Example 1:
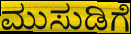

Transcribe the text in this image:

ಮುಸುಡಿಗೆ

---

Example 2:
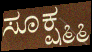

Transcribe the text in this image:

ಸೂಕ್ಷ್ಮ್ಮ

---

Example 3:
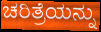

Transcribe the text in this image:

ಚರಿತ್ರೆಯನ್ನು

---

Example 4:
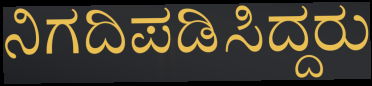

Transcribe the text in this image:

ನಿಗದಿಪಡಿಸಿದ್ದರು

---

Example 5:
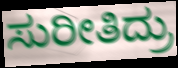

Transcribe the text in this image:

ಸುರೀತಿದ್ರು